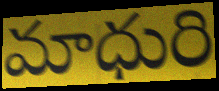
మాధురి